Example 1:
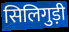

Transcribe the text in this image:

सिलिगुड़ी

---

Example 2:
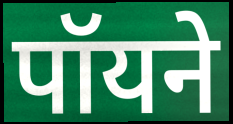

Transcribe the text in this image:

पॉयने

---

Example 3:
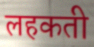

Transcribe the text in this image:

लहकती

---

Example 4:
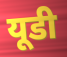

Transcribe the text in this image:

यूडी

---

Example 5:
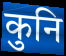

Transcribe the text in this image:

कुनि